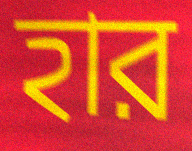
হার